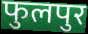
फुलपुर